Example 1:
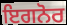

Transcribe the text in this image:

ਇਗਨੋਰ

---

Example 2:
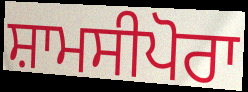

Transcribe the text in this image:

ਸ਼ਾਮਸੀਪੋਰਾ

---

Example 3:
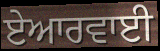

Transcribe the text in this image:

ਏਆਰਵਾਈ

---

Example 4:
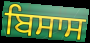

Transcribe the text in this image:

ਬਿਸਾਸ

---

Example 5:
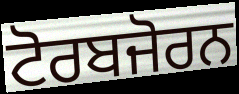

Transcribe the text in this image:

ਟੋਰਬਜੋਰਨ